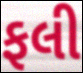
ફલી